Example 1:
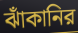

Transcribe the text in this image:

ঝাঁকানির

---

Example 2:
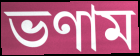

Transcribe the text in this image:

ভণাম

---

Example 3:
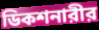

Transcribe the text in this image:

ডিকশনারীর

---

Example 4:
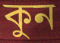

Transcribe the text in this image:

কুন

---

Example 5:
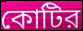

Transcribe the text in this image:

কোটির